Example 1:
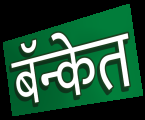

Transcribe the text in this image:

बॅन्केत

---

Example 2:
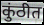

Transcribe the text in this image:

कुंठीत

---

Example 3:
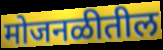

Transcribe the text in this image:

मोजनळीतील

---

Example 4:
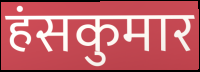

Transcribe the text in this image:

हंसकुमार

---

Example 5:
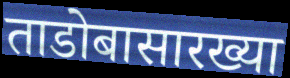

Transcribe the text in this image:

ताडोबासारख्या